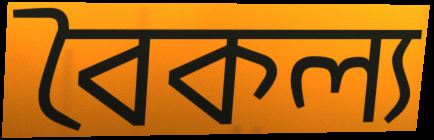
বৈকল্য